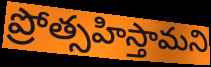
ప్రోత్సహిస్తామని